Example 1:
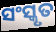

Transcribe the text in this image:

ସଂସ୍କୃତ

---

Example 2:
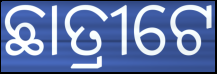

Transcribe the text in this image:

ଛାତ୍ରୀଟେ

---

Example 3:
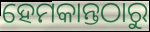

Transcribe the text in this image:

ହେମକାନ୍ତଠାରୁ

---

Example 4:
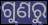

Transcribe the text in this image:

ଗୁଣରୁ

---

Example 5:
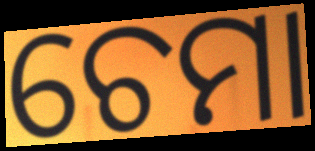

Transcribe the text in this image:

ଚେମା